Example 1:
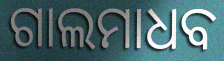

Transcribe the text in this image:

ଗାଲମାଧବ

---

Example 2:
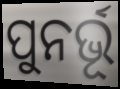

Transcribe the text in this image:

ପୁନର୍ଭୂ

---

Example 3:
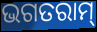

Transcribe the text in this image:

ଭଗତରାମ୍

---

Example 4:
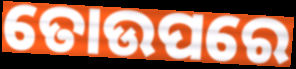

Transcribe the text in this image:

ତୋଉପରେ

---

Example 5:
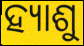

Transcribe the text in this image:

ହ୍ୟାଶୁ